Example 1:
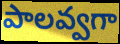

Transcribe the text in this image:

పాలవ్వగా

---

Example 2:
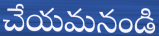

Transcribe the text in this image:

చేయమనండి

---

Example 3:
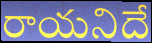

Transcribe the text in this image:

రాయనిదే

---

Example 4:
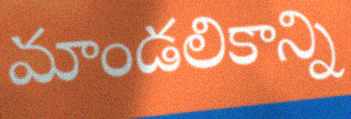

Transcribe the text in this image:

మాండలికాన్ని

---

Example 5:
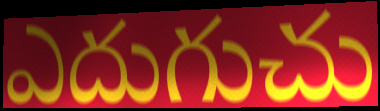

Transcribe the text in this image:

ఎదుగుచు